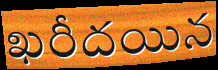
ఖరీదయిన